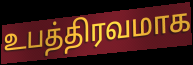
உபத்திரவமாக